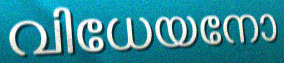
വിധേയനോ